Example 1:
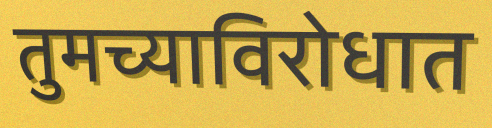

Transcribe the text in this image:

तुमच्याविरोधात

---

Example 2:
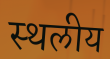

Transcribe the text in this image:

स्थलीय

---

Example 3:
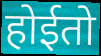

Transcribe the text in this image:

होईतो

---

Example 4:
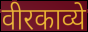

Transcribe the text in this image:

वीरकाव्ये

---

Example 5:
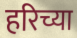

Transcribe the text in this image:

हरिच्या